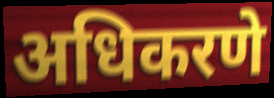
अधिकरणे